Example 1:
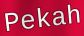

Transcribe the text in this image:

Pekah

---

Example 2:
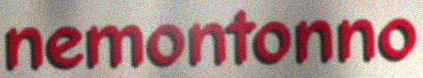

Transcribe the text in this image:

nemontonno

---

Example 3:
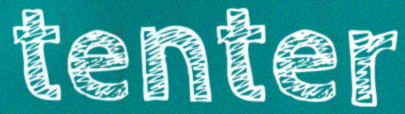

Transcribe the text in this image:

tenter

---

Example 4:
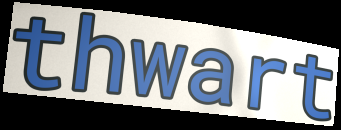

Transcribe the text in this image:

thwart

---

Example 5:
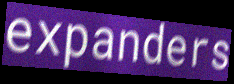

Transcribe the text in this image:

expanders